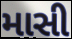
માસી